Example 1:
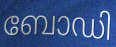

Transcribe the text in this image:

ബോഡി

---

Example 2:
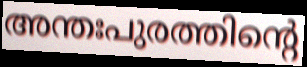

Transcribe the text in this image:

അന്തഃപുരത്തിന്റെ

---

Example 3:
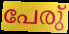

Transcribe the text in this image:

പേരു്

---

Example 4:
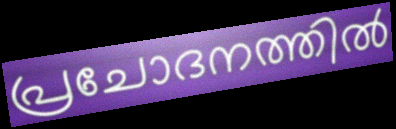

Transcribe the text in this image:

പ്രചോദനത്തിൽ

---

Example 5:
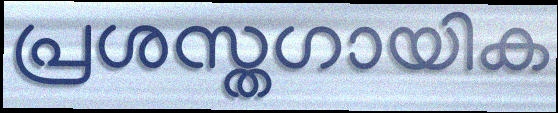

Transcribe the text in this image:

പ്രശസ്തഗായിക